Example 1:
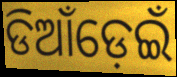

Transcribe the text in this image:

ଡିଆଁଡ଼େଇଁ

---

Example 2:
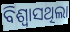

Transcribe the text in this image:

ବିଶ୍ୱାସଥିଲା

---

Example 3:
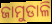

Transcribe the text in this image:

ଜାମୁଡାଳି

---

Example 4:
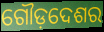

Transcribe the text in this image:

ଗୌଡ଼ଦେଶର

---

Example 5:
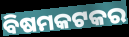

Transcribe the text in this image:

ବିଷମକଟକର